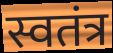
स्वतंत्र